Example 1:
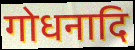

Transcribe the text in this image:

गोधनादि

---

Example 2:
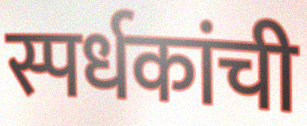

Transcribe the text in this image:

स्पर्धकांची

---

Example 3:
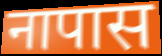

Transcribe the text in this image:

नापास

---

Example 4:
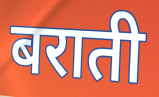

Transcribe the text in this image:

बराती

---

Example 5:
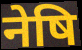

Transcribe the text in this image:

नेषि